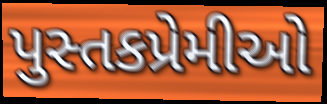
પુસ્તકપ્રેમીઓ